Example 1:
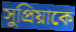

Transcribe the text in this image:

সুপ্রিয়াকে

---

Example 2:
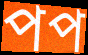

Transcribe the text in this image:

পপ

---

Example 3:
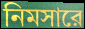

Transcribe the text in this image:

নিমসারে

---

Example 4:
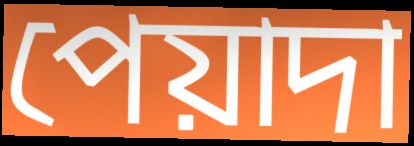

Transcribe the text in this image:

পেয়াদা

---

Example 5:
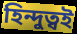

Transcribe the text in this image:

হিন্দুত্বই